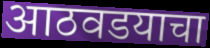
आठवडयाचा